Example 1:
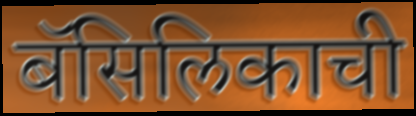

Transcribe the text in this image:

बॅसिलिकाची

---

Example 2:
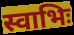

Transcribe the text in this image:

स्वाभिः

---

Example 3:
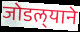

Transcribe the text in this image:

जोडल्याने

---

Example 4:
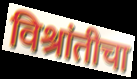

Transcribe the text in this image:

विश्रांतीचा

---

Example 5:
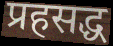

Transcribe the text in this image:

प्रहसद्ध